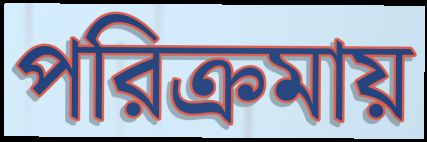
পরিক্রমায়